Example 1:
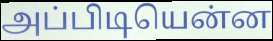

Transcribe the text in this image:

அப்பிடியென்ன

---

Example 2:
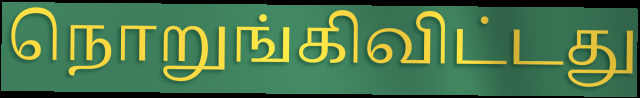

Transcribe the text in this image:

நொறுங்கிவிட்டது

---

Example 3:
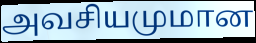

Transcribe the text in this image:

அவசியமுமான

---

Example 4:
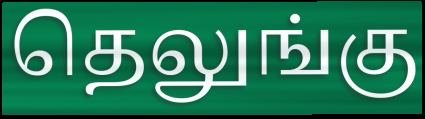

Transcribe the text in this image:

தெலுங்கு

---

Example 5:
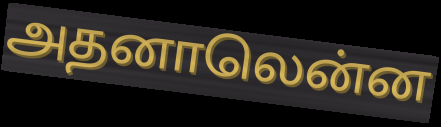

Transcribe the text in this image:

அதனாலென்ன